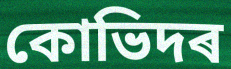
কোভিদৰ